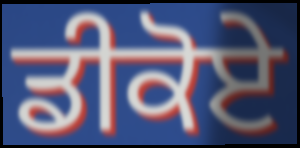
ਡੀਕੋਏ